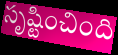
సృష్టించింది